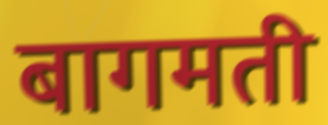
बागमती